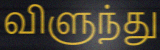
விளுந்து